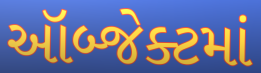
ઑબ્જેક્ટમાં